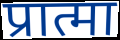
प्रात्मा